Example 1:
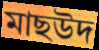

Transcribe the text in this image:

মাছউদ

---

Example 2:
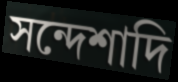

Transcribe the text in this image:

সন্দেশাদি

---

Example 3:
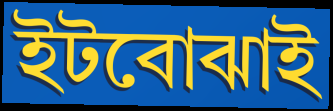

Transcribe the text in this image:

ইটবোঝাই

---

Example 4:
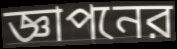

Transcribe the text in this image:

জ্ঞাপনের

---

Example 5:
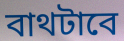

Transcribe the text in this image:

বাথটাবে